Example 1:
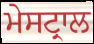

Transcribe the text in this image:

ਮੇਸਟ੍ਰਾਲ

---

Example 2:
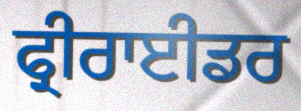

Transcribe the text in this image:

ਫ੍ਰੀਰਾਈਡਰ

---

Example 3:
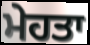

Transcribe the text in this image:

ਮੇਹਤਾ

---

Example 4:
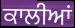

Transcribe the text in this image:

ਕਾਲੀਆਂ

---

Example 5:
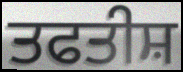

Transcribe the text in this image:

ਤਫਤੀਸ਼